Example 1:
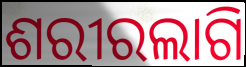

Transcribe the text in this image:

ଶରୀରଲାଗି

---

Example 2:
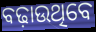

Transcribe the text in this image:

ବଢ଼ାଉଥିବେ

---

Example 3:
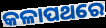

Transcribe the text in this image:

କଳାପଥରେ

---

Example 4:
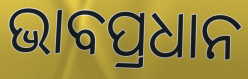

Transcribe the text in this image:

ଭାବପ୍ରଧାନ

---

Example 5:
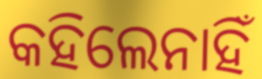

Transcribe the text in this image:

କହିଲେନାହିଁ